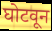
घोटवून